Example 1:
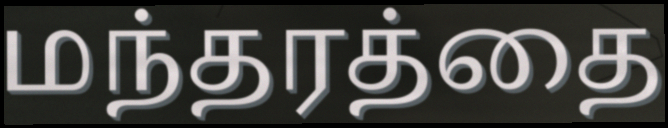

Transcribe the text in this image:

மந்தரத்தை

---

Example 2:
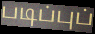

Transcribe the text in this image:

படிப்புப்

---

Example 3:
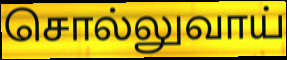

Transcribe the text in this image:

சொல்லுவாய்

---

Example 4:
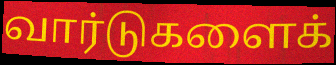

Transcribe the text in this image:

வார்டுகளைக்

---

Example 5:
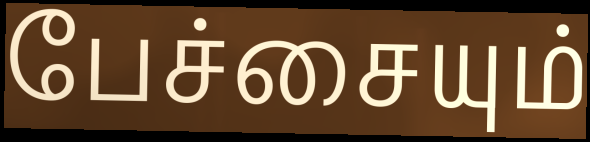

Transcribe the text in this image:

பேச்சையும்